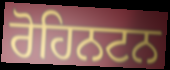
ਰੋਹਿਨਟਨ